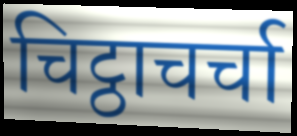
चिट्ठाचर्चा